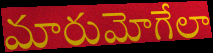
మారుమోగేలా